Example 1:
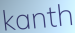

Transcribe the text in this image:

kanth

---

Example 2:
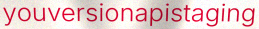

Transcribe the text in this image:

youversionapistaging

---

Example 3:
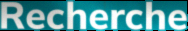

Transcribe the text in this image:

Recherche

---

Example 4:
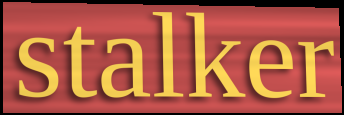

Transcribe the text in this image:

stalker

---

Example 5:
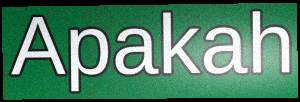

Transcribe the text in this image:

Apakah